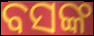
ବସଙ୍କ